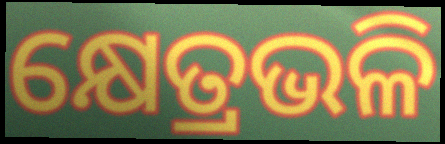
କ୍ଷେତ୍ରଭଳି